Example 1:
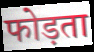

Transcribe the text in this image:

फोड़ता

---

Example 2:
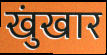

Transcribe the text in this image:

खुंखार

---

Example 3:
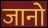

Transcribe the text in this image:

जानो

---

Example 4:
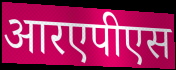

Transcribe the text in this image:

आरएपीएस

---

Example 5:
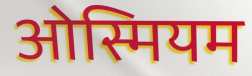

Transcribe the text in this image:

ओस्मियम